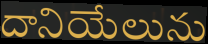
దానియేలును